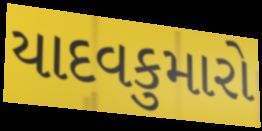
યાદવકુમારો